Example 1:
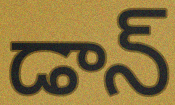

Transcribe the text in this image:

డాన్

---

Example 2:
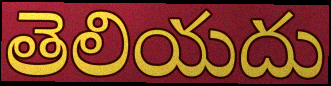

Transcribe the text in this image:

తెలియదు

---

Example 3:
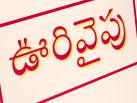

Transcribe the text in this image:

ఊరివైపు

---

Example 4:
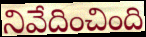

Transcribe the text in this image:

నివేదించింది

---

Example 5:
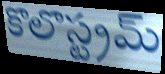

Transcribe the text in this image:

కొలొస్ట్రమ్